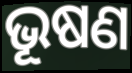
ଭୂଷଣ